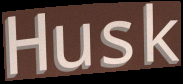
Husk